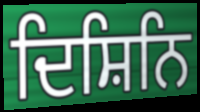
ਦਿਸ਼ਿਨਿ